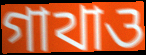
গাথাও